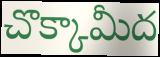
చొక్కామీద